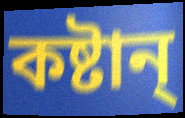
কষ্টান্